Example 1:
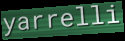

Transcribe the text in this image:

yarrelli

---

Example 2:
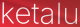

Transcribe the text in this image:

ketalu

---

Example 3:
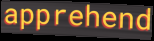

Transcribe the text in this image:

apprehend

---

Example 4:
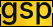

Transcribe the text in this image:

gsp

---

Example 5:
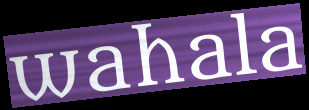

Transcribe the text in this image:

wahala